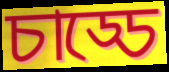
চাড্ডে